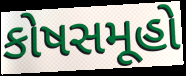
કોષસમૂહો